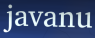
javanu